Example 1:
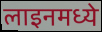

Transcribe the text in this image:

लाइनमध्ये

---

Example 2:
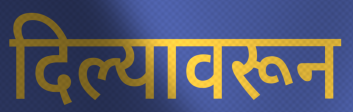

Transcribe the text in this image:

दिल्यावरून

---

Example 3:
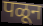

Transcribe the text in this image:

पळून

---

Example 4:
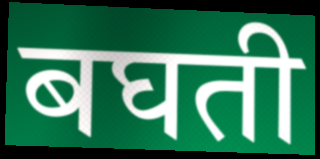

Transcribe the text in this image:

बघती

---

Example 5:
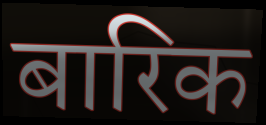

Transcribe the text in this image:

बारिक